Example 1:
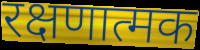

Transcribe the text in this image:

रक्षणात्मक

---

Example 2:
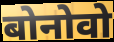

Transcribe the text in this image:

बोनोवो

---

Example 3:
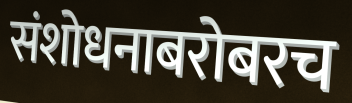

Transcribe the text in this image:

संशोधनाबरोबरच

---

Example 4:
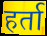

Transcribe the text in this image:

हर्ता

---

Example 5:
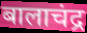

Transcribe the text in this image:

बालाचंद्र